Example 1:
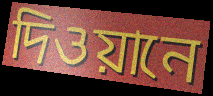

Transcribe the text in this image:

দিওয়ানে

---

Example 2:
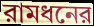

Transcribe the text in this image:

রামধনের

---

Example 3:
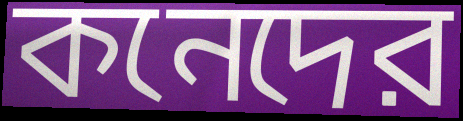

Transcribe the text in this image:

কনেদের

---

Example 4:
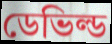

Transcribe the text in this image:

ডেভিল্ড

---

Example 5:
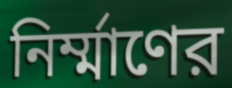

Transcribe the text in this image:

নির্ম্মাণের